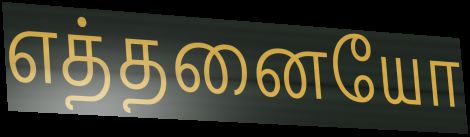
எத்தனையோ